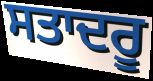
ਸਤਾਦਰੂ